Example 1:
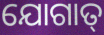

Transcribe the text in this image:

ଯୋଗାତ୍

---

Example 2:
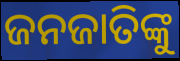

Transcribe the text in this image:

ଜନଜାତିଙ୍କୁ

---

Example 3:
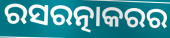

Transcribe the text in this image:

ରସରତ୍ନାକରର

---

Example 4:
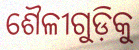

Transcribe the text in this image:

ଶୈଳୀଗୁଡ଼ିକୁ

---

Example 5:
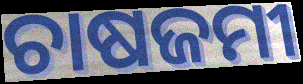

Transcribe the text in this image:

ଚାଷଜମୀ